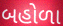
બહોળા